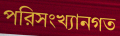
পরিসংখ্যানগত